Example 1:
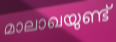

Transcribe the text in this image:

മാലാഖയുണ്ട്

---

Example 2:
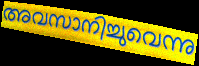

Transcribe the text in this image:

അവസാനിച്ചുവെന്നു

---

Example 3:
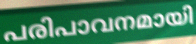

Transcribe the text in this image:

പരിപാവനമായി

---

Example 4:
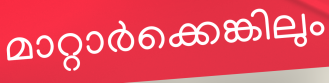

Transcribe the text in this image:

മാറ്റാർക്കെങ്കിലും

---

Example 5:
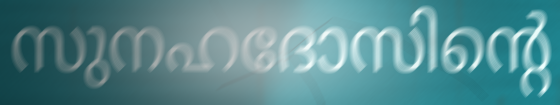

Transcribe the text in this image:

സുനഹദോസിന്റെ